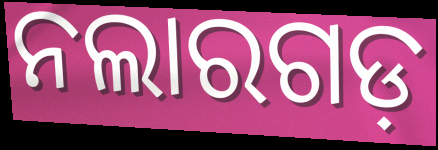
ନଲାରଗଡ଼